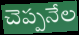
చెప్పనేల